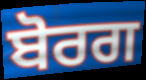
ਬੋਰਗ